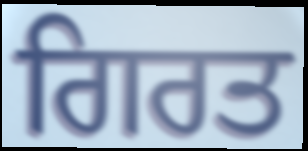
ਗਿਰਤ